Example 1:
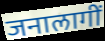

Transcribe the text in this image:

जनालागीं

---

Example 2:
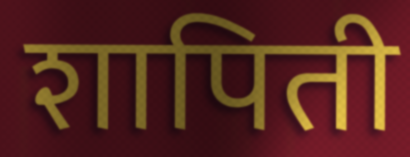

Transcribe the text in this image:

शापिती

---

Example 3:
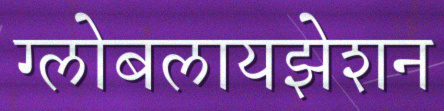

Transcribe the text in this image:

ग्लोबलायझेशन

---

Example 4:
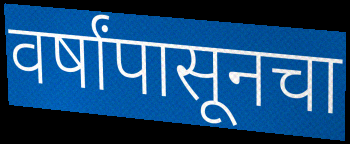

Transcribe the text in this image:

वर्षांपासूनचा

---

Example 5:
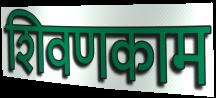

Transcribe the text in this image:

शिवणकाम